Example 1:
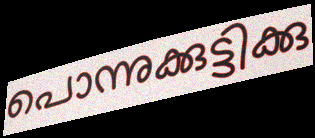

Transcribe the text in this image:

പൊന്നുക്കുട്ടിക്കു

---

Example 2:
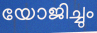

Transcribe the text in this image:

യോജിച്ചും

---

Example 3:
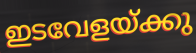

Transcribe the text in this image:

ഇടവേളയ്ക്കു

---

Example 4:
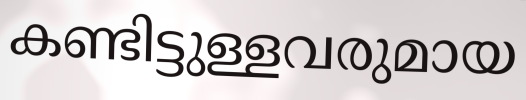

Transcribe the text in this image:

കണ്ടിട്ടുള്ളവരുമായ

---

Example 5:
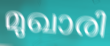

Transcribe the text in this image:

മുഖാരി